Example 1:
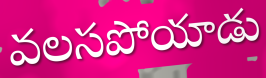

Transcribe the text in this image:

వలసపోయాడు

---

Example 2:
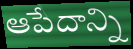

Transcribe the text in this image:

ఆపేదాన్ని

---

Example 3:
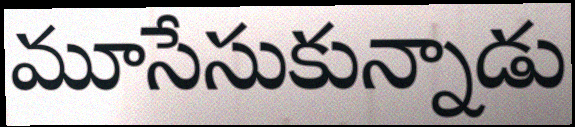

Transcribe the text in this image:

మూసేసుకున్నాడు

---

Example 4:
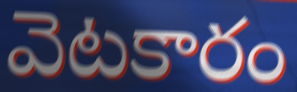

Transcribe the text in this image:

వెటకారం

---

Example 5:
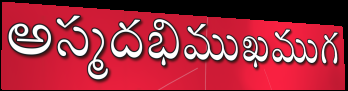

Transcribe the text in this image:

అస్మదభిముఖముగ